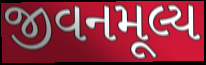
જીવનમૂલ્ય